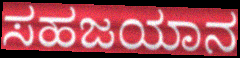
ಸಹಜಯಾನ